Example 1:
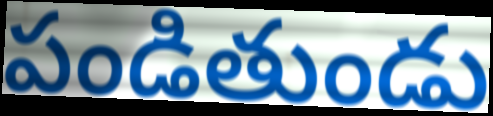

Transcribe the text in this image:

పండితుండు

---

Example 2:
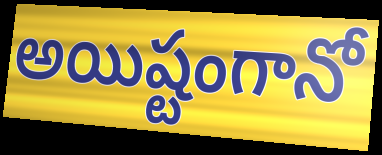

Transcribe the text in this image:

అయిష్టంగానో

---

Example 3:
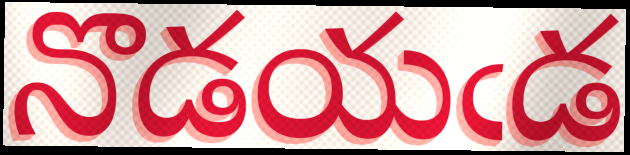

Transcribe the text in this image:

నొడయఁడ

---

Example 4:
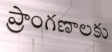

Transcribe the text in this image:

ప్రాంగణాలకు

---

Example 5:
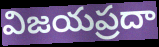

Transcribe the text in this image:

విజయప్రదా